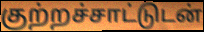
குற்றச்சாட்டுடன்